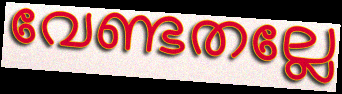
വേണ്ടതല്ലേ